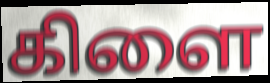
கிளை